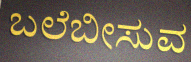
ಬಲೆಬೀಸುವ